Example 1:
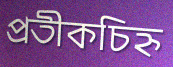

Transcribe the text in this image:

প্ৰতীকচিহ্ন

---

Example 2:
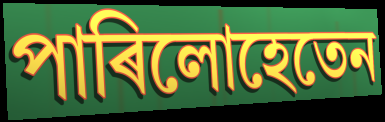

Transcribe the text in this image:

পাৰিলোহেতেন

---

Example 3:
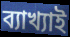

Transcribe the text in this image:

ব্যাখ্যাই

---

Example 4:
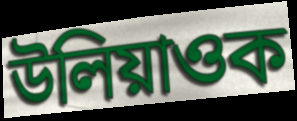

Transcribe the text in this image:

উলিয়াওক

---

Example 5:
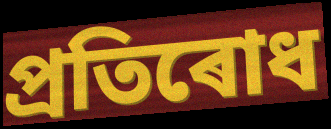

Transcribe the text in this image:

প্ৰতিৰোধ